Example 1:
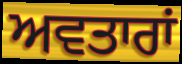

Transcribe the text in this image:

ਅਵਤਾਰਾਂ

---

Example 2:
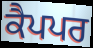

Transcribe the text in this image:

ਕੈਪਪਰ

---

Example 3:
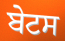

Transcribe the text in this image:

ਬੇਟਸ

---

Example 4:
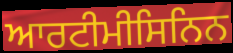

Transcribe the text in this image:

ਆਰਟੀਮੀਸਿਨਿਨ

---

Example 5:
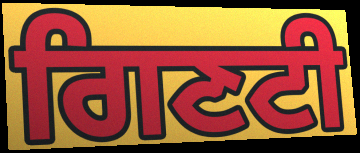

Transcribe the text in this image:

ਗਿਣਟੀ